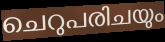
ചെറുപരിചയും